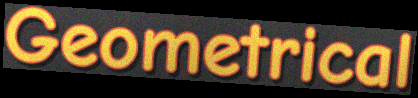
Geometrical